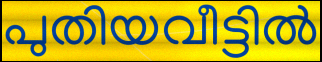
പുതിയവീട്ടിൽ